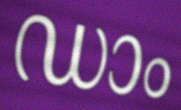
ഡാം